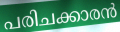
പരിചക്കാരൻ